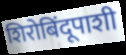
शिरोबिंदूपाशी